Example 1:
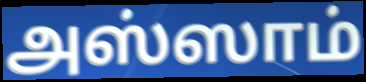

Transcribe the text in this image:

அஸ்ஸாம்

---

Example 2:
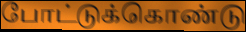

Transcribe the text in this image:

போட்டுக்கொண்டு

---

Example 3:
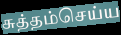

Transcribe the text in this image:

சுத்தம்செய்ய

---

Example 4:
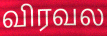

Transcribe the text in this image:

விரவல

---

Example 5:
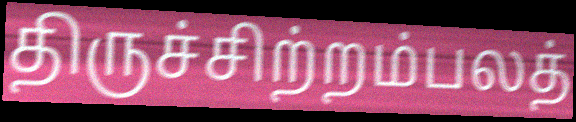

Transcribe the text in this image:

திருச்சிற்றம்பலத்